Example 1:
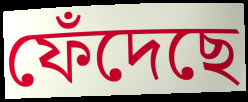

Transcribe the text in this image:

ফেঁদেছে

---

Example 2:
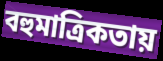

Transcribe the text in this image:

বহুমাত্রিকতায়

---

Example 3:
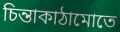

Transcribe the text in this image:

চিন্তাকাঠামোতে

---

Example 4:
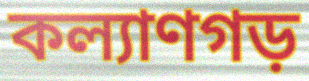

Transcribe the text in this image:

কল্যাণগড়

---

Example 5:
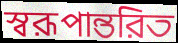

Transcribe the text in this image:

স্বরূপান্তরিত